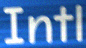
Intl